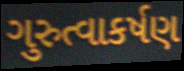
ગુરુત્વાકર્ષણ